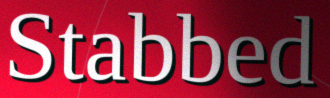
Stabbed